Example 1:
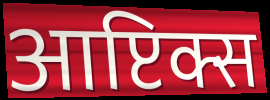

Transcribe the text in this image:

आप्टिक्स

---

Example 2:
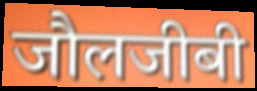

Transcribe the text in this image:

जौलजीबी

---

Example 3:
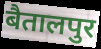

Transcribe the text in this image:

बैतालपुर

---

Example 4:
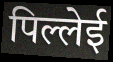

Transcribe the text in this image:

पिल्लेई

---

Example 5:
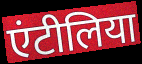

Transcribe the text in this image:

एंटीलिया